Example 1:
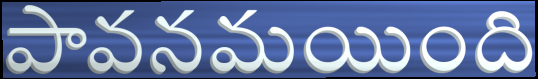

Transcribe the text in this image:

పావనమయింది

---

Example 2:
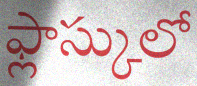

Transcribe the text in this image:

ఫ్లాస్కులో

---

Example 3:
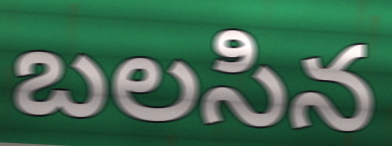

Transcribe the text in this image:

బలసిన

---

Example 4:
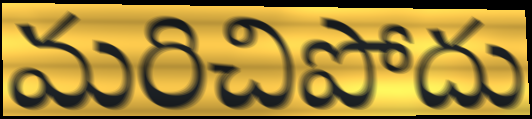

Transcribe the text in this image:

మరిచిపోదు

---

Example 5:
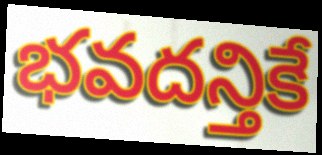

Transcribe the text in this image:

భవదన్తికే